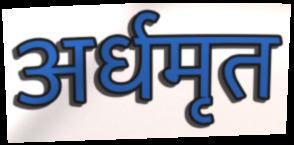
अर्धमृत